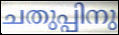
ചതുപ്പിനു